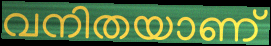
വനിതയാണ്